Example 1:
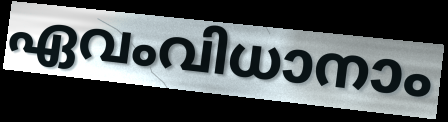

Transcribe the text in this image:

ഏവംവിധാനാം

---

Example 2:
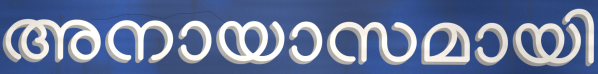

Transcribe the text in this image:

അനായാസമായി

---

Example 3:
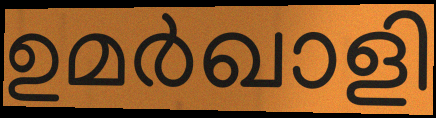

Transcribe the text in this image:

ഉമർഖാളി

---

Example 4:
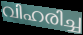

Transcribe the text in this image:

വിഹരിച്ച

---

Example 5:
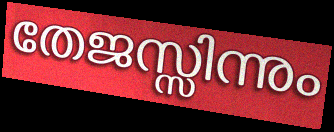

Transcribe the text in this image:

തേജസ്സിന്നും